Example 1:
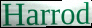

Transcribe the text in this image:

Harrod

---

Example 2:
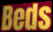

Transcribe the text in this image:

Beds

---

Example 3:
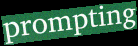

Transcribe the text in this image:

prompting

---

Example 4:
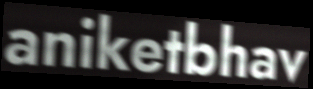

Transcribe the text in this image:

aniketbhav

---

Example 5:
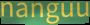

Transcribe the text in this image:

nanguu